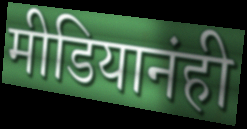
मीडियानंही